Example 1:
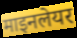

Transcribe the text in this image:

माइनलेयर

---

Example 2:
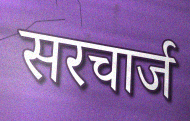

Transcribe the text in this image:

सरचार्ज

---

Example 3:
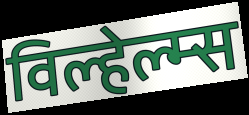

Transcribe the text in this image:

विल्हेल्म्स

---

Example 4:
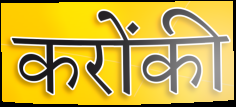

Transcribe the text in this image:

करोंकी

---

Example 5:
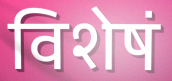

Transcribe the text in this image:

विशेषं